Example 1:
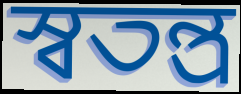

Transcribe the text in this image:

স্বতন্ত্ৰ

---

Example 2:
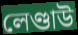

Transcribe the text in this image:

লেণ্ডাউ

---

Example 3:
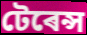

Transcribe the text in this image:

টেৰেন্স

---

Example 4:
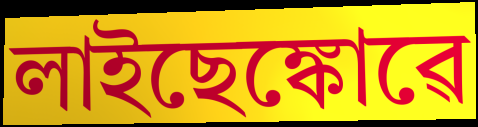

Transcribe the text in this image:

লাইছেঙ্কোৱে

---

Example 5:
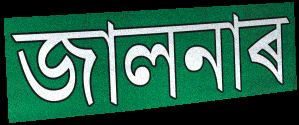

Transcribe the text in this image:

জালনাৰ